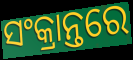
ସଂକ୍ରାନ୍ତରେ